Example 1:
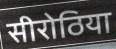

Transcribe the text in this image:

सीरोठिया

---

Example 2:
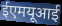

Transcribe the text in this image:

ईएमयूआई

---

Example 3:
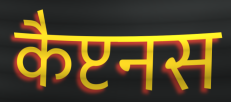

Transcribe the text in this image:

कैप्टनस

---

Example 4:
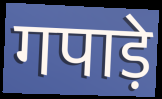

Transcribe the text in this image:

गपाड़े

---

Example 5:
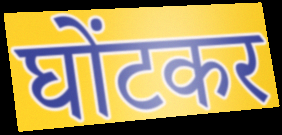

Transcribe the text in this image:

घोंटकर